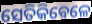
ସେତିକିବେଳେ